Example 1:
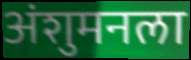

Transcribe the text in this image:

अंशुमनला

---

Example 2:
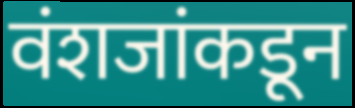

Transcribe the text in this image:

वंशजांकडून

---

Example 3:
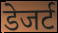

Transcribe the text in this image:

डेजर्ट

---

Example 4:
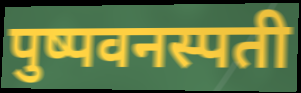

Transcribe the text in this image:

पुष्पवनस्पती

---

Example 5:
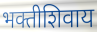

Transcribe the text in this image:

भक्तीशिवाय